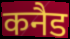
कनैड